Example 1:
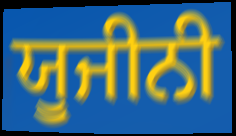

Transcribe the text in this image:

ਯੂਜੀਨੀ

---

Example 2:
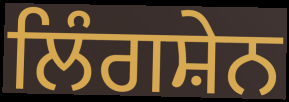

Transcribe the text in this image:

ਲਿੰਗਸ਼ੇਨ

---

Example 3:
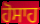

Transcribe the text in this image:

ਹੋਸਾਹ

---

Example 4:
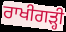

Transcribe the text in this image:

ਰਾਖੀਗੜ੍ਹੀ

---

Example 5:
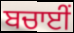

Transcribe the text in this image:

ਬਚਾਈਂ